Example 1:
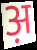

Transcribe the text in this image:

अ़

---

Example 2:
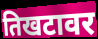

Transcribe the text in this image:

तिखटावर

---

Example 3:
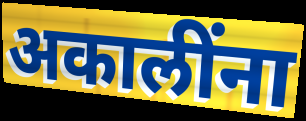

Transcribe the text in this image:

अकालींना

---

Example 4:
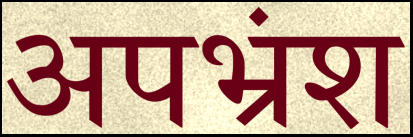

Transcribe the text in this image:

अपभ्रंश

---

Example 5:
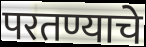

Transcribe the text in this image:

परतण्याचे